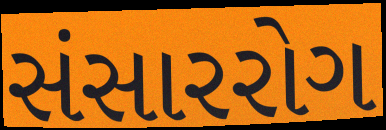
સંસારરોગ